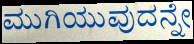
ಮುಗಿಯುವುದನ್ನೇ